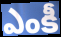
ఎంకీ